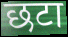
छटा